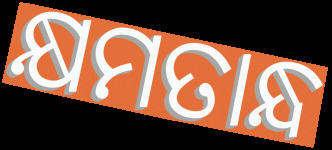
କ୍ଷମତାନ୍ଧ